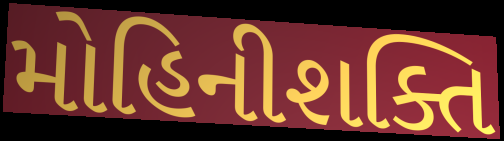
મોહિનીશક્તિ